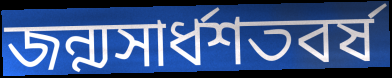
জন্মসার্ধশতবর্ষ